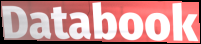
Databook